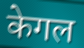
केगल